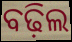
ବଢ଼ିଲ